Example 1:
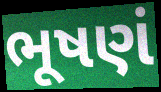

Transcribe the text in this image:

ભૂષણં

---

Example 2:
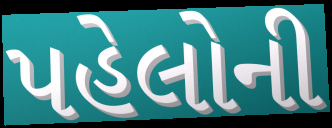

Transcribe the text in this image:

પહેલોની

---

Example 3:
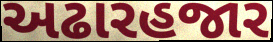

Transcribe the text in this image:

અઢારહજાર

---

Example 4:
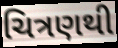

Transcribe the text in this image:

ચિત્રણથી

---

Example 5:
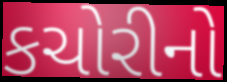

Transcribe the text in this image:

કચોરીનો